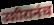
उशीरानंच